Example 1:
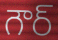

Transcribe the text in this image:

గౌర్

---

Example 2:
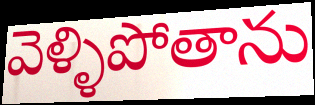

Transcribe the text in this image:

వెళ్ళిపోతాను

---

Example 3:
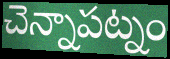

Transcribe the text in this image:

చెన్నాపట్నం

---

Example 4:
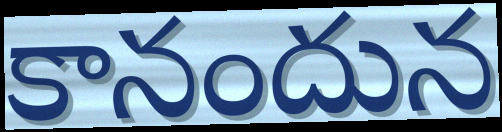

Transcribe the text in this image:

కానందున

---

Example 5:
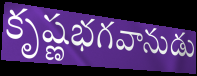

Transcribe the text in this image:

కృష్ణభగవానుడు